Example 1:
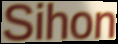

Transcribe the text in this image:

Sihon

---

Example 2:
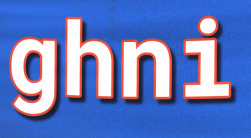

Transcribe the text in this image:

ghni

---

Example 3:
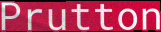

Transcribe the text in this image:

Prutton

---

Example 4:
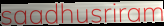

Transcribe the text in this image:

saadhusriram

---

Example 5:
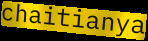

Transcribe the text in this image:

chaitianya